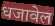
धजावेल